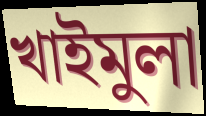
খাইমুলা